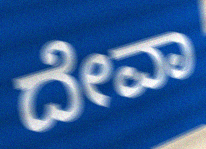
ದೇವಾ